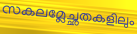
സകലമ്ലേച്ഛതകളിലും